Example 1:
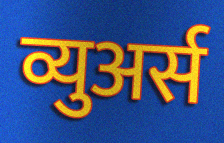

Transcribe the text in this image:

व्युअर्स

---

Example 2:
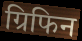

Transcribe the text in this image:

ग्रिफिन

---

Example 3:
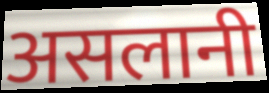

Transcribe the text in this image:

असलानी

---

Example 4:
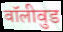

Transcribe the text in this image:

वॉलीवुड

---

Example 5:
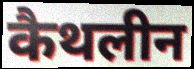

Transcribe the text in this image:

कैथलीन